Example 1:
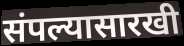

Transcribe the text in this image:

संपल्यासारखी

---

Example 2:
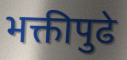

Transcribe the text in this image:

भक्तीपुढे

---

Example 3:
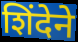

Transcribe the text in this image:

शिंदेने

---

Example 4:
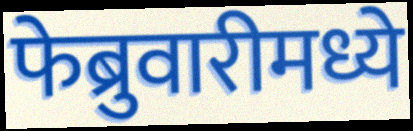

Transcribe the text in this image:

फेब्रुवारीमध्ये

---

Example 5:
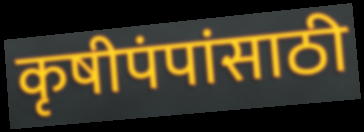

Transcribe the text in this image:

कृषीपंपांसाठी